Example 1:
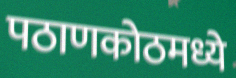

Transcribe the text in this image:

पठाणकोठमध्ये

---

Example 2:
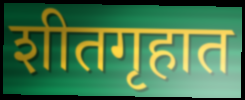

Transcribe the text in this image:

शीतगृहात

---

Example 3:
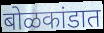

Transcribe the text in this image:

बोळकांडात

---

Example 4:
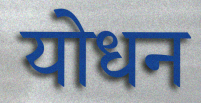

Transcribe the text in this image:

योधन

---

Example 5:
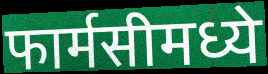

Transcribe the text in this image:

फार्मसीमध्ये